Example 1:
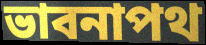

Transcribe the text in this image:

ভাবনাপথ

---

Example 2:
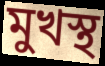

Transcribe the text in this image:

মুখস্থ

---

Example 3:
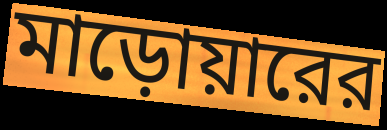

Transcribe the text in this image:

মাড়োয়ারের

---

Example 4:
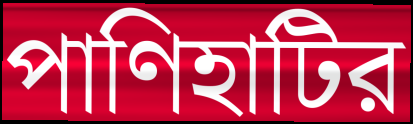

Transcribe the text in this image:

পাণিহাটির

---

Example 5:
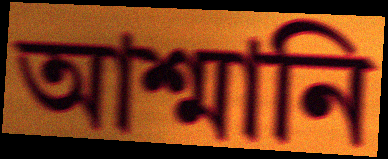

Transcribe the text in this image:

আশ্মানি